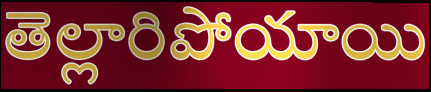
తెల్లారిపోయాయి